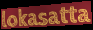
lokasatta